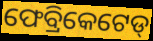
ଫେବ୍ରିକେଟେଡ୍